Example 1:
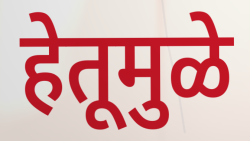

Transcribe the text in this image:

हेतूमुळे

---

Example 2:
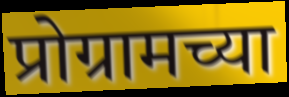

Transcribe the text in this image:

प्रोग्रामच्या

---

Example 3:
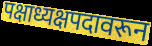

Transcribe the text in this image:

पक्षाध्यक्षपदावरून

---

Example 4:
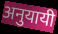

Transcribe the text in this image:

अनुयायी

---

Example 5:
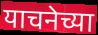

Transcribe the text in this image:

याचनेच्या